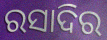
ରସାଦିର